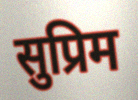
सुप्रिम